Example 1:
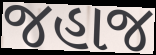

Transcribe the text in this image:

જહાજ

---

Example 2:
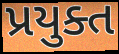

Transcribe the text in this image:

પ્રયુક્ત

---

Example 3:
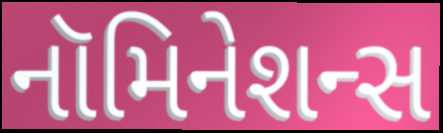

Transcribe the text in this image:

નૉમિનેશન્સ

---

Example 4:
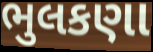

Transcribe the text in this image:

ભુલકણા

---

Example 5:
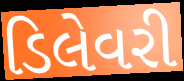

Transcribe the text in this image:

ડિલેવરી